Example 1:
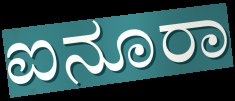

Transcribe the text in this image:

ಐನೂರಾ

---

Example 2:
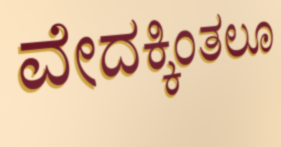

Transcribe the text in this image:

ವೇದಕ್ಕಿಂತಲೂ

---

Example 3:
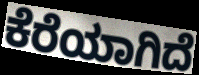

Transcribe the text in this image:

ಕೆರೆಯಾಗಿದೆ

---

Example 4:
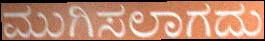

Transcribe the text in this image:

ಮುಗಿಸಲಾಗದು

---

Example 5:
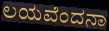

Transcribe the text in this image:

ಲಯವೆಂದನಾ